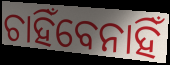
ଚାହିଁବେନାହିଁ